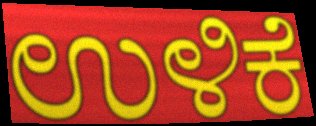
ಉಳಿಕೆ